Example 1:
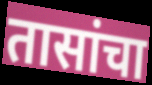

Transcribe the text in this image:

तासांचा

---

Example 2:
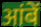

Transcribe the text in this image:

आंबें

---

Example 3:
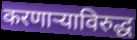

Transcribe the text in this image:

करणाऱ्याविरुद्ध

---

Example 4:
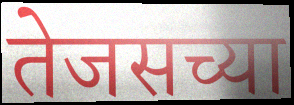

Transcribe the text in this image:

तेजसच्या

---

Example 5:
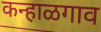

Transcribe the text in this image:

कन्हाळगाव